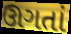
ઊગતાં